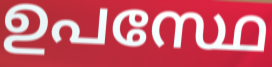
ഉപസ്ഥേ